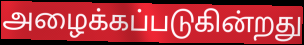
அழைக்கப்படுகின்றது